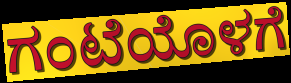
ಗಂಟೆಯೊಳಗೆ